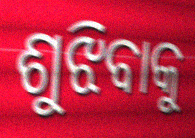
ଶୁଝିବାକୁ